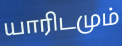
யாரிடமும்